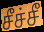
சீச்சீ